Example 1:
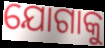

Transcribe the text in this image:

ଯୋଗାକୁ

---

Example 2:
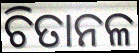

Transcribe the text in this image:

ଚିତାନଳ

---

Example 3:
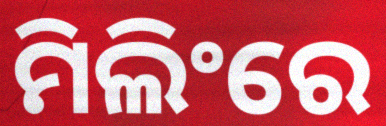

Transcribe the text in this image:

ମିଲିଂରେ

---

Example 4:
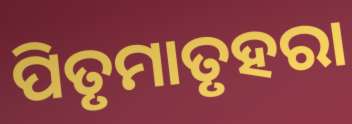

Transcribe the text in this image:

ପିତୃମାତୃହରା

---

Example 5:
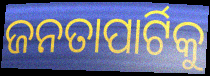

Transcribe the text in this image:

ଜନତାପାର୍ଟିକୁ